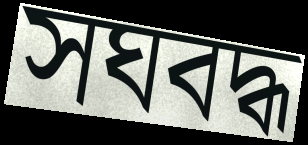
সঘবদ্ধ